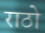
राठो